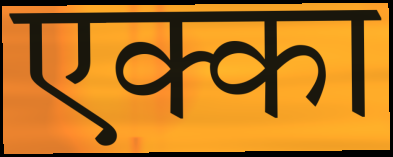
एक्का